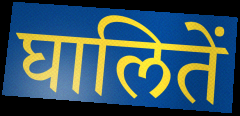
घालितें